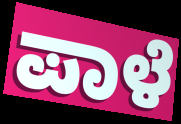
ಪಾಳೆ